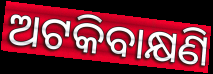
ଅଟକିବାକ୍ଷଣି